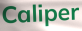
Caliper